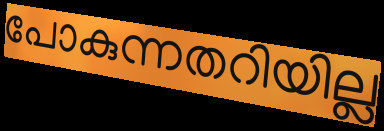
പോകുന്നതറിയില്ല